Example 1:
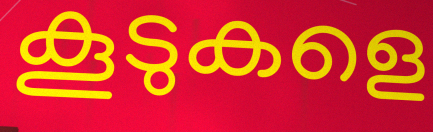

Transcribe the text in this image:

കൂടുകളെ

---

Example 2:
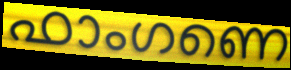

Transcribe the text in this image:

ഫാംഗണെ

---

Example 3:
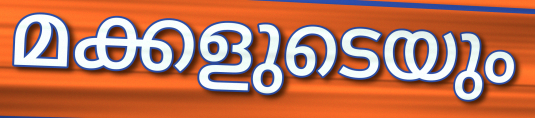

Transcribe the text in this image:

മക്കളുടെയും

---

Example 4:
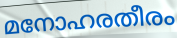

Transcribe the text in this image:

മനോഹരതീരം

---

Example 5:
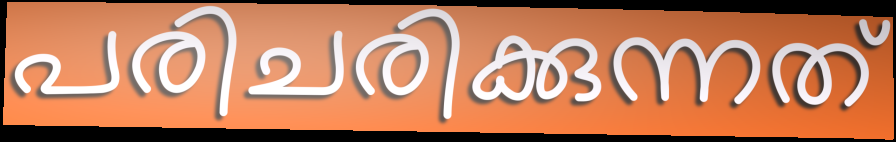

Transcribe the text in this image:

പരിചരിക്കുന്നത്